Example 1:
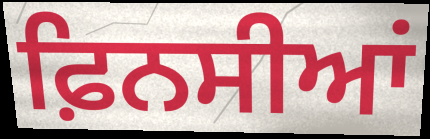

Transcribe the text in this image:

ਫ਼ਿਨਸੀਆਂ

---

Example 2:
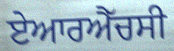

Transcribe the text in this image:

ਏਆਰਐੱਚਸੀ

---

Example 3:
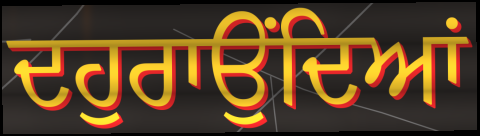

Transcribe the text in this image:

ਦਹੁਰਾਉਂਦਿਆਂ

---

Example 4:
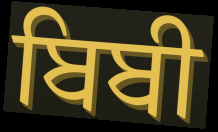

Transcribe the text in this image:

ਬਿਬੀ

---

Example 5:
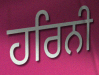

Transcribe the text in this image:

ਹਰਿਨੀ